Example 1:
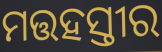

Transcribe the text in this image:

ମତ୍ତହସ୍ତୀର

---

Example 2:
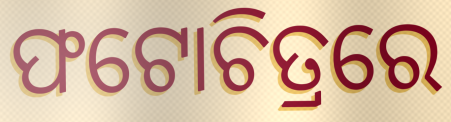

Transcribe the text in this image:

ଫଟୋଚିତ୍ରରେ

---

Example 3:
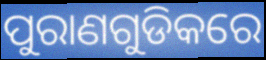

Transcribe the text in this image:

ପୁରାଣଗୁଡିକରେ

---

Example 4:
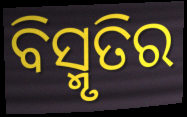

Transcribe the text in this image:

ବିସ୍ମୃତିର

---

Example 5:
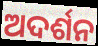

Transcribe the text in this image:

ଅଦର୍ଶନ